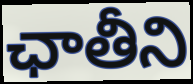
ఛాతీని